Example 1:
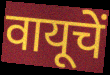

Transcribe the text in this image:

वायूचें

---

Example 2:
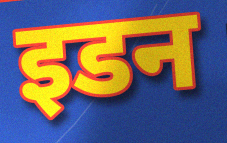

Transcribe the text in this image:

इडन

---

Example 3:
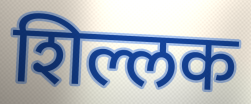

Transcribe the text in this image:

शिल्लक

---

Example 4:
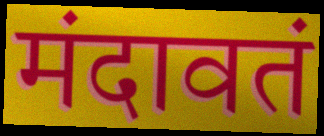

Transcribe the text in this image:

मंदावतं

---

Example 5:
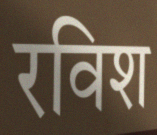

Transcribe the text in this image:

रविश